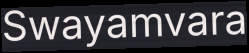
Swayamvara